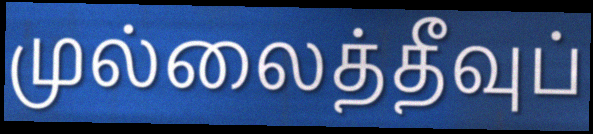
முல்லைத்தீவுப்